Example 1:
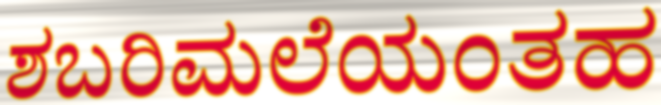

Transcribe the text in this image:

ಶಬರಿಮಲೆಯಂತಹ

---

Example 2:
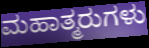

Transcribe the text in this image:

ಮಹಾತ್ಮರುಗಳು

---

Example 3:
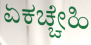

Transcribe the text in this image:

ಏಕಚ್ಚೇಹಿ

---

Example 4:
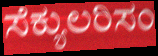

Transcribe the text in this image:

ಸೆಕ್ಯುಲರಿಸಂ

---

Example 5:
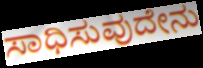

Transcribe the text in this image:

ಸಾಧಿಸುವುದೇನು